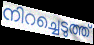
നിറച്ചെടുത്ത്